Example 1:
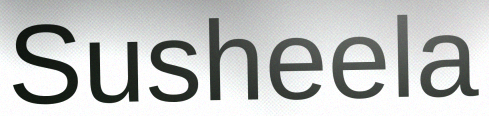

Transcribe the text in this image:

Susheela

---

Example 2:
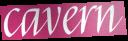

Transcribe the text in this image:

cavern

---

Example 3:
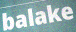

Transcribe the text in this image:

balake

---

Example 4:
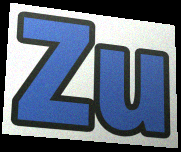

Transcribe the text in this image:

Zu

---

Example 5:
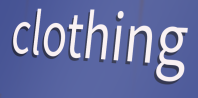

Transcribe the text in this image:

clothing